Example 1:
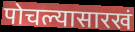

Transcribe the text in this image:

पोचल्यासारखं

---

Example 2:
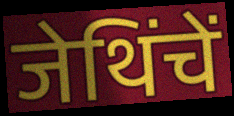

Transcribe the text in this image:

जेथिंचें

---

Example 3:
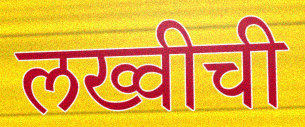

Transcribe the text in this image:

लख्वीची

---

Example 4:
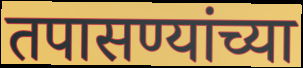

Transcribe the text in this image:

तपासण्यांच्या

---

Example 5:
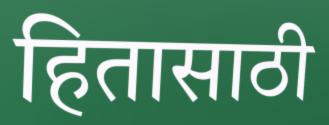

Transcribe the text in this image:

हितासाठी